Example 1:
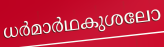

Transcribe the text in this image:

ധർമാർഥകുശലോ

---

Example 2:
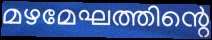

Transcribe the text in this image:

മഴമേഘത്തിന്റെ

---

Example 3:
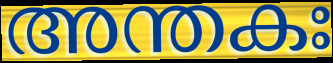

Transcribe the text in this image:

അന്തകഃ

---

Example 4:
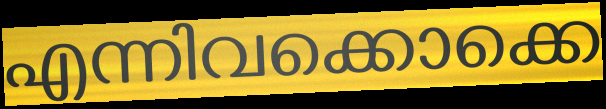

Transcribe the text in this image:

എന്നിവക്കൊക്കെ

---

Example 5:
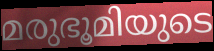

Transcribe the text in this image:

മരുഭൂമിയുടെ